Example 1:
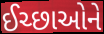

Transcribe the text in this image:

ઈચ્છાઓને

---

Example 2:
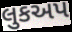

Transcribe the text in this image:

લુકઅપ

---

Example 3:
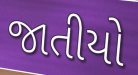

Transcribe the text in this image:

જાતીયો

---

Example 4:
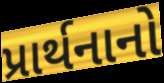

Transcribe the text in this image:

પ્રાર્થનાનો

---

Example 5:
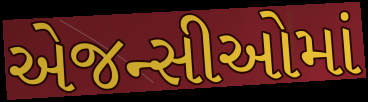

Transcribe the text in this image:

એજન્સીઓમાં